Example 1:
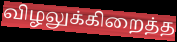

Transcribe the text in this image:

விழலுக்கிறைத்த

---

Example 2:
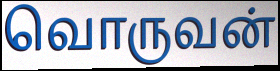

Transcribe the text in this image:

வொருவன்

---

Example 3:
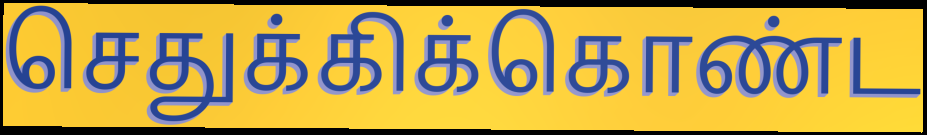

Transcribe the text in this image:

செதுக்கிக்கொண்ட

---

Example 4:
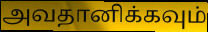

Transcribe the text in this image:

அவதானிக்கவும்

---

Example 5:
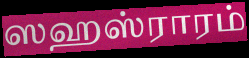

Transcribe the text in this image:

ஸஹஸ்ராரம்